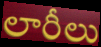
లారీలు